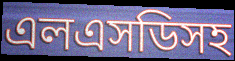
এলএসডিসহ